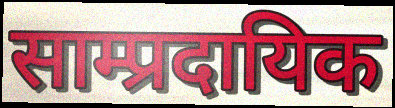
साम्प्रदायिक